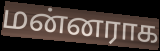
மன்னராக